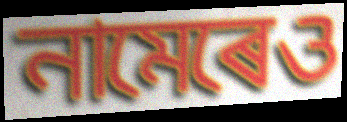
নামেৰেও